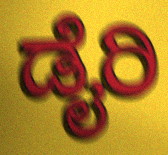
ಡೈರಿ